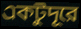
একটুদূরে